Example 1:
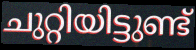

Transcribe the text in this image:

ചുറ്റിയിട്ടുണ്ട്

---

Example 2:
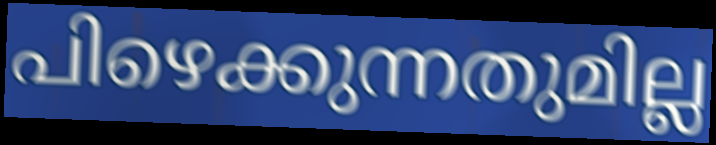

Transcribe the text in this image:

പിഴെക്കുന്നതുമില്ല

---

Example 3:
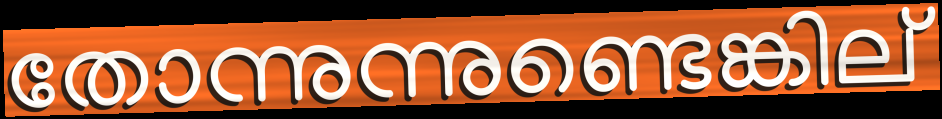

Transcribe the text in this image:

തോന്നുന്നുണ്ടെങ്കില്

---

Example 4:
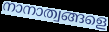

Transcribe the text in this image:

നാനാത്വങ്ങളെ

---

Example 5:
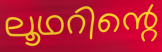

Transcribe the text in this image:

ലൂഥറിന്റെ